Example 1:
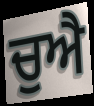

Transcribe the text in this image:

ਚੁਐ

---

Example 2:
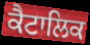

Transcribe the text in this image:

ਕੈਟਾਲਿਕ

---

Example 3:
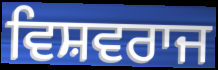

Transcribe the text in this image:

ਵਿਸ਼ਵਰਾਜ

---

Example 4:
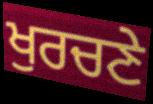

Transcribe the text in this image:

ਖੁਰਚਣੇ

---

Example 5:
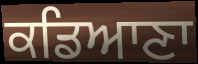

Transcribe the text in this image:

ਕਡਿਆਣਾ